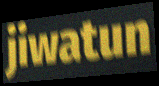
jiwatun